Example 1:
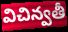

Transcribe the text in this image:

విచిన్వతీ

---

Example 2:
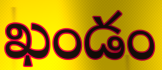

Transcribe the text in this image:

ఖండం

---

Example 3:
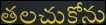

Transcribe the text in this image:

తలచుకోను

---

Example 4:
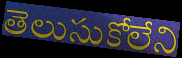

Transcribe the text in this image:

తెలుసుకోలేని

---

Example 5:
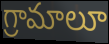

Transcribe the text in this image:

గ్రామాలూ